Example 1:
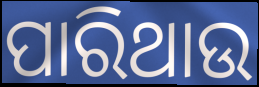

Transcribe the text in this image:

ପାରିଥାଉ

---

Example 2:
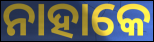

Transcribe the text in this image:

ନାହାକେ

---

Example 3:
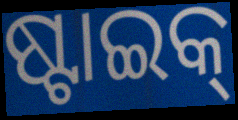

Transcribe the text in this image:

ଷ୍ଟାଇକ୍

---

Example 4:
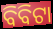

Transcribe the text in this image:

ବିବିଟା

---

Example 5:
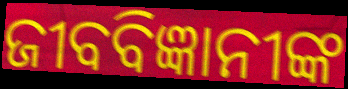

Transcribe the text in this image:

ଜୀବବିଜ୍ଞାନୀଙ୍କ